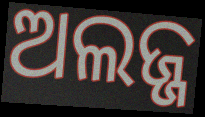
ଅଲଜ୍ଜ